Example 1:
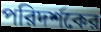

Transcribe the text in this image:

পরিদর্শকের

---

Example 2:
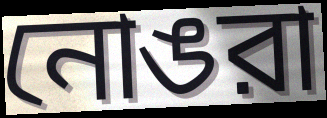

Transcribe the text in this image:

নোঙরা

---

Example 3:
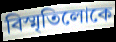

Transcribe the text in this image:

বিস্মৃতিলোকে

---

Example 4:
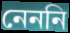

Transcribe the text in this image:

নেননি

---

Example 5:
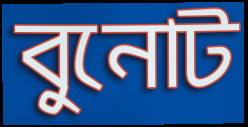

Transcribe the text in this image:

বুনোট